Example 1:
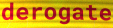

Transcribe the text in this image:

derogate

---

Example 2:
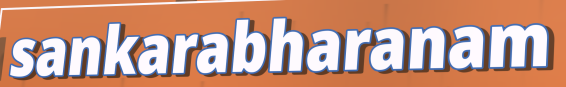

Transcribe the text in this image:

sankarabharanam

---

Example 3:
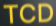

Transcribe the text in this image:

TCD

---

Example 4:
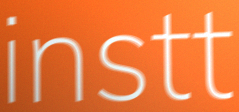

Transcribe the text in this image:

instt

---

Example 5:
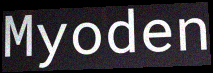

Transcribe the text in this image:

Myoden